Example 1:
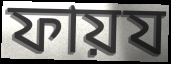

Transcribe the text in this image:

ফায়য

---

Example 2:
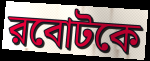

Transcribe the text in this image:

রবোটকে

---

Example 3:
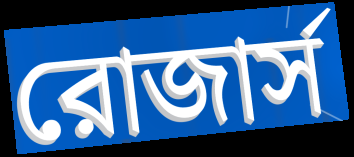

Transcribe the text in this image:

রোজার্স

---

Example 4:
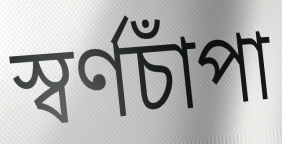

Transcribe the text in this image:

স্বর্ণচাঁপা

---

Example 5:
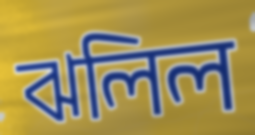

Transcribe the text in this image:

ঝলিল